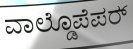
ವಾಲ್ಡೊಪೆಪರ್‍